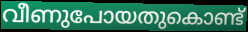
വീണുപോയതുകൊണ്ട്